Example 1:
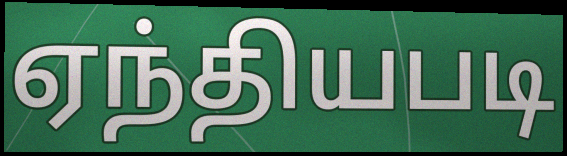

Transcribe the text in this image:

ஏந்தியபடி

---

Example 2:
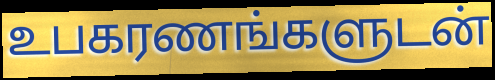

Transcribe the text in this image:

உபகரணங்களுடன்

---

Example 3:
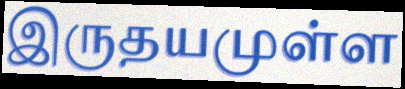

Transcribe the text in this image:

இருதயமுள்ள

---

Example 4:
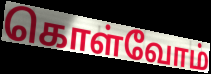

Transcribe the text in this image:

கொள்வோம்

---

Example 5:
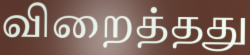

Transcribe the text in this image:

விறைத்தது